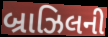
બ્રાઝિલની